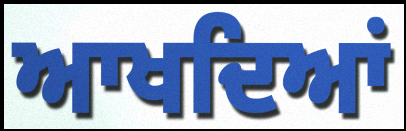
ਆਖਦਿਆਂ